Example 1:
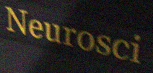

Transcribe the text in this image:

Neurosci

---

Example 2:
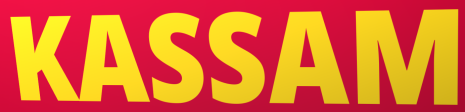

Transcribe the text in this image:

KASSAM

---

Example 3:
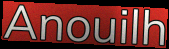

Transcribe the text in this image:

Anouilh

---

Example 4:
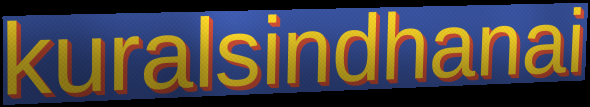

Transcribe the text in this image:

kuralsindhanai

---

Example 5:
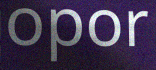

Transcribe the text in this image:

opor